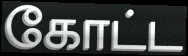
கோட்ட